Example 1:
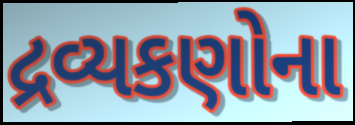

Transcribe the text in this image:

દ્રવ્યકણોના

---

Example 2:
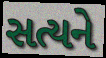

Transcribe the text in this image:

સત્યને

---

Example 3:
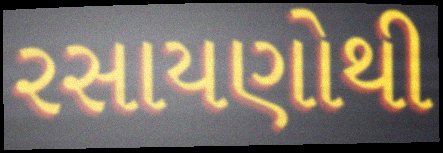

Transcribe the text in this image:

રસાયણોથી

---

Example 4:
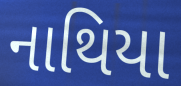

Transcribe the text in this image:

નાથિયા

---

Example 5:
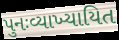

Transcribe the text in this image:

પુનઃવ્યાખ્યાયિત